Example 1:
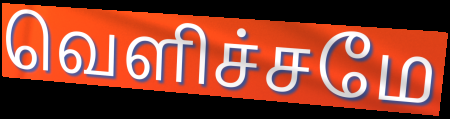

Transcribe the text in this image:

வெளிச்சமே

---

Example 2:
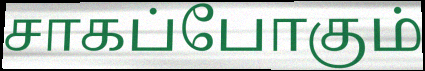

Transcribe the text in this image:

சாகப்போகும்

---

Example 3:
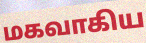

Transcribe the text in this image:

மகவாகிய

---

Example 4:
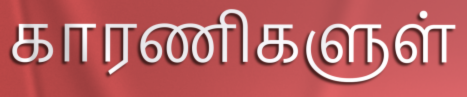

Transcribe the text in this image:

காரணிகளுள்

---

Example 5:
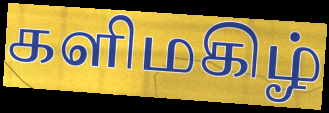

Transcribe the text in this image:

களிமகிழ்